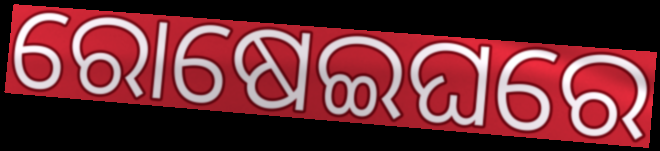
ରୋଷେଇଘରେ